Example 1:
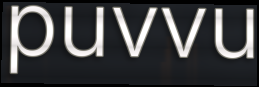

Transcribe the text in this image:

puvvu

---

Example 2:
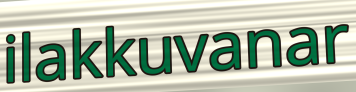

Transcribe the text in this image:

ilakkuvanar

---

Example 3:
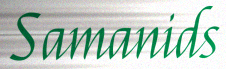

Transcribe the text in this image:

Samanids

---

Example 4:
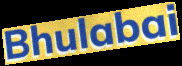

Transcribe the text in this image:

Bhulabai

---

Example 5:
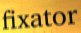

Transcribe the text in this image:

fixator